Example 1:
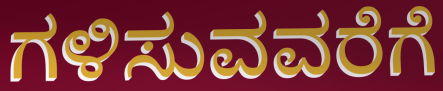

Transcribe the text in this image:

ಗಳಿಸುವವರೆಗೆ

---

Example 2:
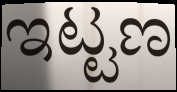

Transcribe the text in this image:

ಇಟ್ಟಣ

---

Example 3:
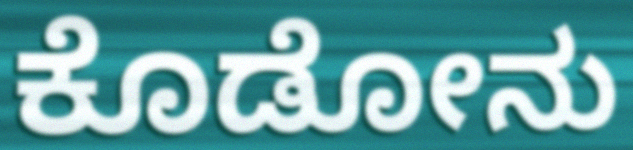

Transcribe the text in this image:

ಕೊಡೋನು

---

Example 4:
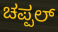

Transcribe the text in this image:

ಚಪ್ಪಲ್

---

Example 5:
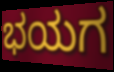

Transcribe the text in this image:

ಭಯಗ